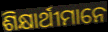
ଶିକ୍ଷାର୍ଥୀମାନେ